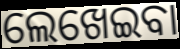
ଲେଖେଇବା